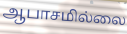
ஆபாசமில்லை